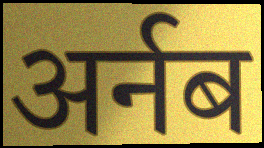
अर्नब